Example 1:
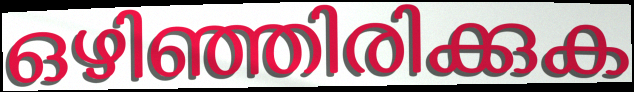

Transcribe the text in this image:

ഒഴിഞ്ഞിരിക്കുക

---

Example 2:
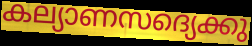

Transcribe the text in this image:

കല്യാണസദ്യെക്കു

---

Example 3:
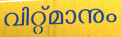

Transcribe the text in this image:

വിറ്റ്മാനും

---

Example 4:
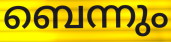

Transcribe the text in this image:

ബെന്നും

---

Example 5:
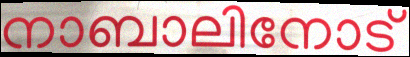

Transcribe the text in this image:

നാബാലിനോട്